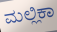
ಮಲ್ಲಿಕಾ